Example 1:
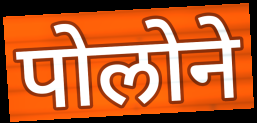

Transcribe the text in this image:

पोलोने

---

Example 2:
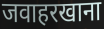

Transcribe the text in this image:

जवाहरखाना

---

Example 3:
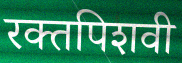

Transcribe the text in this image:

रक्तपिशवी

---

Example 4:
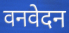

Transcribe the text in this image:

वनवेदन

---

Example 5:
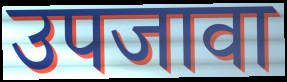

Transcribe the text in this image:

उपजावा